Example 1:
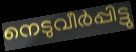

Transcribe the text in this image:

നെടുവീർപ്പിട്ടു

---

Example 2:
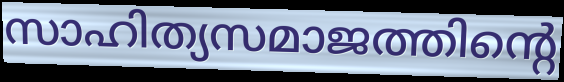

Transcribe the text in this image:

സാഹിത്യസമാജത്തിന്റെ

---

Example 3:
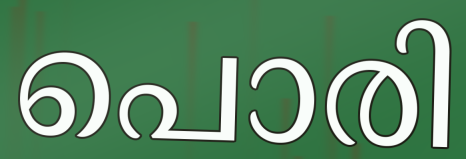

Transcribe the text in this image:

പൊരി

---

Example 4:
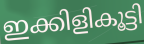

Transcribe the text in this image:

ഇക്കിളികൂട്ടി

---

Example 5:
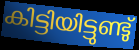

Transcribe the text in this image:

കിട്ടിയിട്ടുണ്ടു്